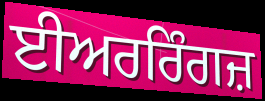
ਈਅਰਰਿੰਗਜ਼